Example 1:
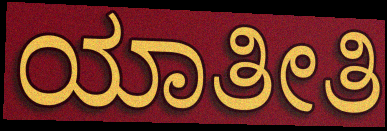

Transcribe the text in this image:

ಯಾತೀತಿ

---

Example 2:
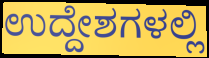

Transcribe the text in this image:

ಉದ್ದೇಶಗಳಲ್ಲಿ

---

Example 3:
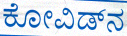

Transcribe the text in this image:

ಕೋವಿಡ್‌ನ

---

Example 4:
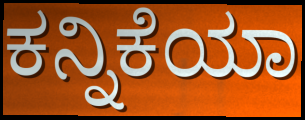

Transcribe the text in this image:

ಕನ್ನಿಕೆಯಾ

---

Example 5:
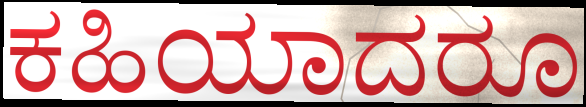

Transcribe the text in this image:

ಕಹಿಯಾದರೂ